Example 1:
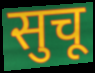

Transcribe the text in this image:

सुचू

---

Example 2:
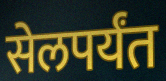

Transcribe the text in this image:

सेलपर्यंत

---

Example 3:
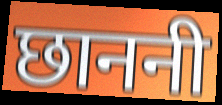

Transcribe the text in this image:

छाननी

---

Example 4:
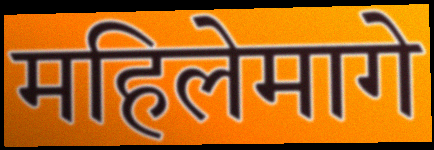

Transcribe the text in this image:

महिलेमागे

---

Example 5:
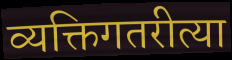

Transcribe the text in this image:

व्यक्तिगतरीत्या